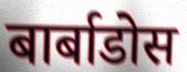
बार्बाडोस